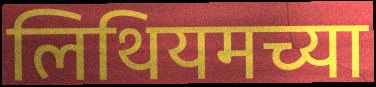
लिथियमच्या